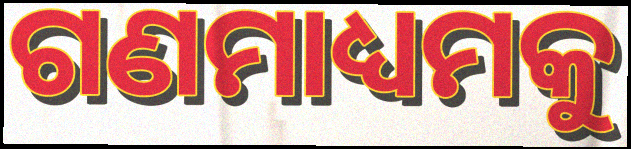
ଗଣମାଧ୍ୟମକୁ